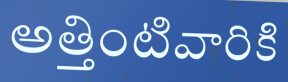
అత్తింటివారికి